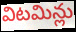
విటమిన్లు